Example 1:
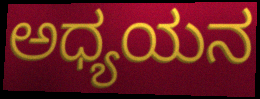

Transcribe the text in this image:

ಅಧ್ಯಯನ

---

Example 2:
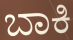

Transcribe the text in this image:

ಬಾಕಿ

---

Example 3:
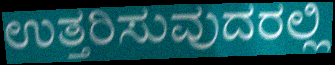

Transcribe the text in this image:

ಉತ್ತರಿಸುವುದರಲ್ಲಿ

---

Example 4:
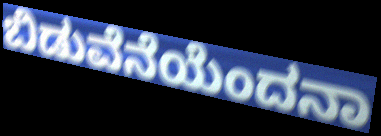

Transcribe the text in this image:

ಬಿಡುವೆನೆಯೆಂದನಾ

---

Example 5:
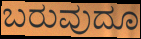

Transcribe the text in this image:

ಬರುವುದೂ